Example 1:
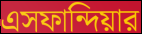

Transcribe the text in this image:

এসফান্দিয়ার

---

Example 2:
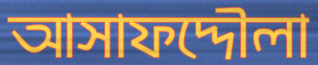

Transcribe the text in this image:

আসাফদ্দৌলা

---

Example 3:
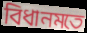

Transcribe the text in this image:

বিধানমতে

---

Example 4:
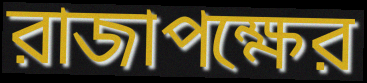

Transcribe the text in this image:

রাজাপক্ষের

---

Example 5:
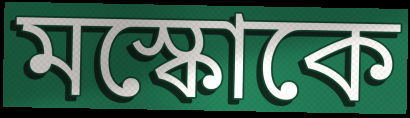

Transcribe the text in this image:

মস্কোকে